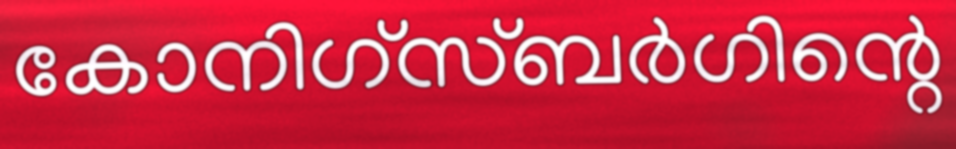
കോനിഗ്സ്ബർഗിന്റെ